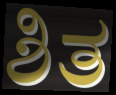
ಶಿತ